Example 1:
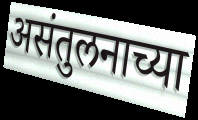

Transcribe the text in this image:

असंतुलनाच्या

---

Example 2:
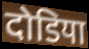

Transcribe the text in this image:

दोडिया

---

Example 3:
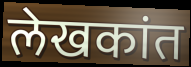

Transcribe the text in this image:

लेखकांत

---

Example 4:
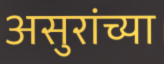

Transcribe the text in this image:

असुरांच्या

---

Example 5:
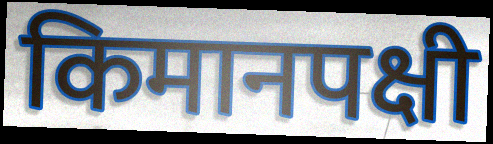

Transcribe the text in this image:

किमानपक्षी